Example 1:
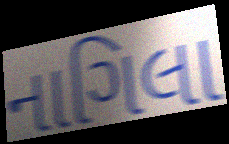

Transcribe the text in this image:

નાગિલા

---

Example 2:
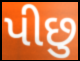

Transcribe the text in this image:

પીછુ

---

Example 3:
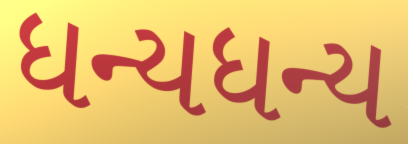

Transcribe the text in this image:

ધન્યધન્ય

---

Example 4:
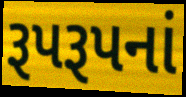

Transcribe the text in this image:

રૂપરૂપનાં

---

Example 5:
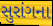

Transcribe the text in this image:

સુરાંગના